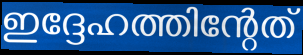
ഇദ്ദേഹത്തിന്റേത്